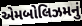
એમબોલિઝમનું